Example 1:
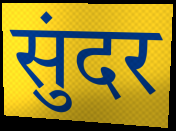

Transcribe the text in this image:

सुंदर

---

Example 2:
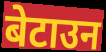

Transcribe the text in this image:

बेटाउन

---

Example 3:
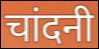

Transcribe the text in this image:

चांदनी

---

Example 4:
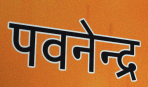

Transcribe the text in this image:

पवनेन्द्र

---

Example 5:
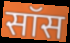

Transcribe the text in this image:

सॉस